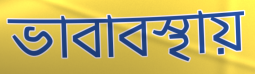
ভাবাবস্থায়